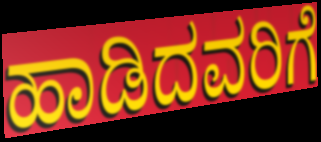
ಹಾಡಿದವರಿಗೆ